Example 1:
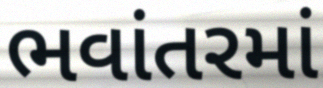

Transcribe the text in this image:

ભવાંતરમાં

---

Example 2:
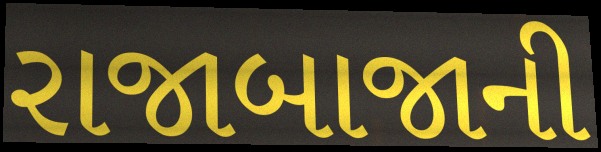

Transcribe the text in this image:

રાજાબાજાની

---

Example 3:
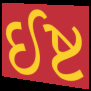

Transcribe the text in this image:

ઈષ્ટ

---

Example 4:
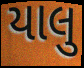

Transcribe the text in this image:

યાલુ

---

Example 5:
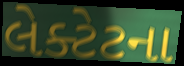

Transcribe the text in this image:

લેક્ટેટના